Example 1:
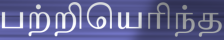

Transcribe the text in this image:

பற்றியெரிந்த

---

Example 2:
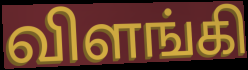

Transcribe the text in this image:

விளங்கி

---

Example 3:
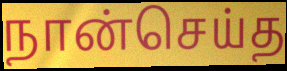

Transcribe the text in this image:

நான்செய்த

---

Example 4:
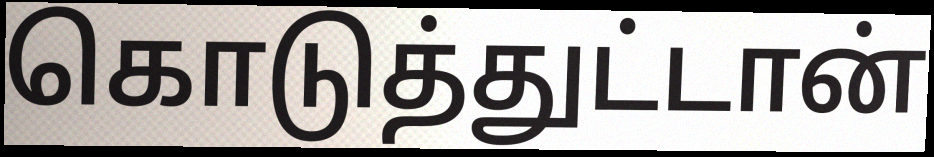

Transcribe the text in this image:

கொடுத்துட்டான்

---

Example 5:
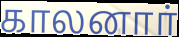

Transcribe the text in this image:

காலனார்